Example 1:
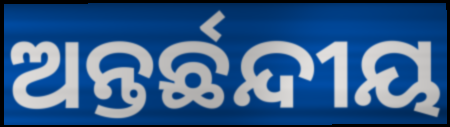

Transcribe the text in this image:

ଅନ୍ତର୍ଛନ୍ଦୀୟ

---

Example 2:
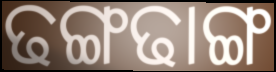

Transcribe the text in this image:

ଢଙ୍ଗଢାଙ୍ଗ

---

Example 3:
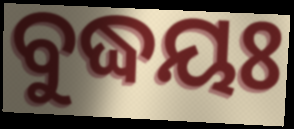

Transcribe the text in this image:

ବୁଦ୍ଧୟଃ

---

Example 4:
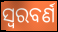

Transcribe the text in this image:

ସ୍ଵରବର୍ଣ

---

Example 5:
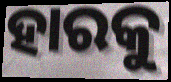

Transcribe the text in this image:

ହାରକୁ